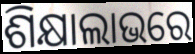
ଶିକ୍ଷାଲାଭରେ